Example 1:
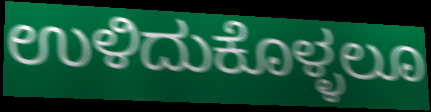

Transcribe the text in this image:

ಉಳಿದುಕೊಳ್ಳಲೂ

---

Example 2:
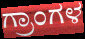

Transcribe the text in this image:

ಗ್ರಾಂಗಳ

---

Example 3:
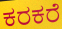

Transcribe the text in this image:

ಕರಕರೆ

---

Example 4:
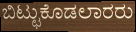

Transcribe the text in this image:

ಬಿಟ್ಟುಕೊಡಲಾರರು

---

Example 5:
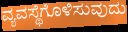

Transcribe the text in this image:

ವ್ಯವಸ್ಥೆಗೊಳಿಸುವುದು